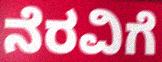
ನೆರವಿಗೆ